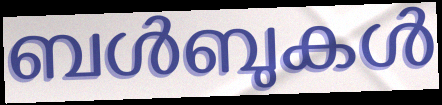
ബൾബുകൾ